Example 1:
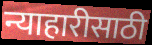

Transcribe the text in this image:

न्याहारीसाठी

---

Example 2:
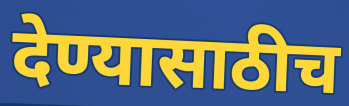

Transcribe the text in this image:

देण्यासाठीच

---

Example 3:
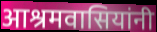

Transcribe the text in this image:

आश्रमवासियांनी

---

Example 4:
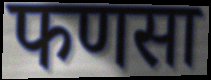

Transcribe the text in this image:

फणसा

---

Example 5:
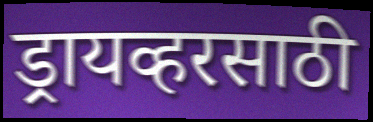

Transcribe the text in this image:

ड्रायव्हरसाठी